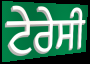
ਟੇਰੇਸੀ